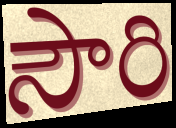
సౌరి